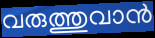
വരുത്തുവാൻ